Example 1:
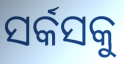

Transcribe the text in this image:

ସର୍କସକୁ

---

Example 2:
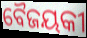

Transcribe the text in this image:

ବୈଜୟକୀ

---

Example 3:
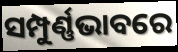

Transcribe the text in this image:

ସମ୍ପୁର୍ଣ୍ଣଭାବରେ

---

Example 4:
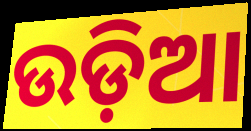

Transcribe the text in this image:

ଉଡ଼ିଆ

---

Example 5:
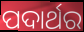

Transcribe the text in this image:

ପଦାର୍ଥର